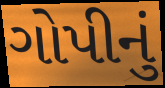
ગોપીનું